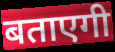
बताएगी